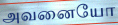
அவனையோ